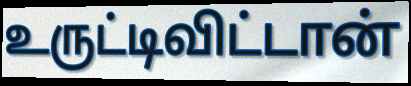
உருட்டிவிட்டான்